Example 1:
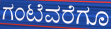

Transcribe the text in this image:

ಗಂಟೆವರೆಗೂ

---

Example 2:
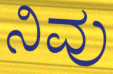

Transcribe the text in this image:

ನಿವು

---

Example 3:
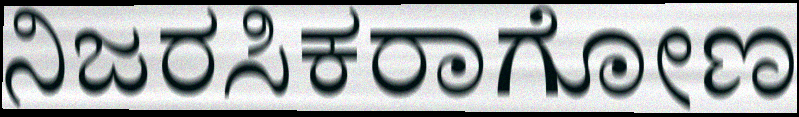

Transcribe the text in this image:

ನಿಜರಸಿಕರಾಗೋಣ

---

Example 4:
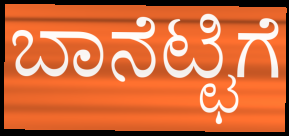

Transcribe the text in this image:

ಬಾನೆಟ್ಟಿಗೆ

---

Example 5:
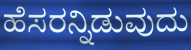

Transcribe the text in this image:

ಹೆಸರನ್ನಿಡುವುದು